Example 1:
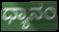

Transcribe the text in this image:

ಧ್ಯಾನಂ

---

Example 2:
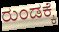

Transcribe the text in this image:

ರುಂಡಕ್ಕೆ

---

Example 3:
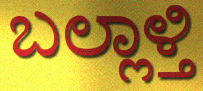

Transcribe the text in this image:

ಬಲ್ಲಾಳ್ತಿ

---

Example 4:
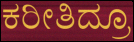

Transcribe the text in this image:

ಕರೀತಿದ್ರೂ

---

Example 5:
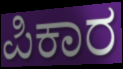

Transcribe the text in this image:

ಪಿಕಾರ